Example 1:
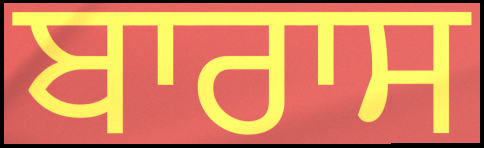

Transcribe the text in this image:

ਬਾਰਾਸ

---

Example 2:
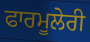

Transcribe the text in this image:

ਫਾਰਮੂਲੇਰੀ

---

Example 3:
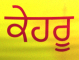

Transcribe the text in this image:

ਕੇਹਰੂ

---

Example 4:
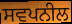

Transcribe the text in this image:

ਸਵਪਨੀਲ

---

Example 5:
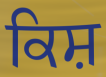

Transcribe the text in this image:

ਕਿਸ਼